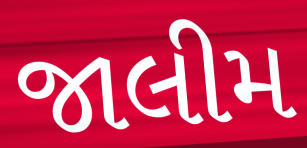
જાલીમ